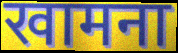
खामना